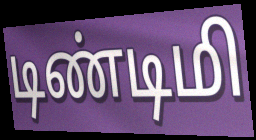
டிண்டிமி